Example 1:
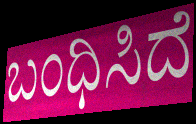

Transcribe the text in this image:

ಬಂಧಿಸಿದೆ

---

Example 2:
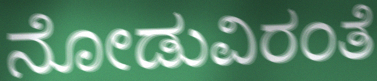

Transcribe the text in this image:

ನೋಡುವಿರಂತೆ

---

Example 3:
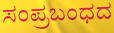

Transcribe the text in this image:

ಸಂಪ್ರಬಂಧದ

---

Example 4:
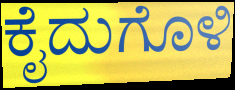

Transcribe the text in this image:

ಕೈದುಗೊಳಿ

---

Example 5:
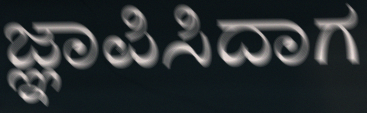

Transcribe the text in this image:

ಜ್ಞಾಪಿಸಿದಾಗ